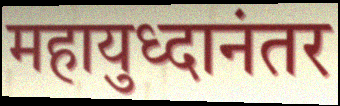
महायुध्दानंतर